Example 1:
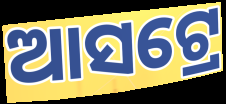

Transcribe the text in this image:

ଆସଟ୍ରେ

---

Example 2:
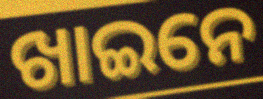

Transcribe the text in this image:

ଖାଇନେ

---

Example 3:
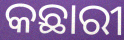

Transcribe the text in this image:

କଛାରୀ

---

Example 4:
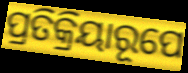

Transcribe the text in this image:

ପ୍ରତିକ୍ରିୟାରୂପେ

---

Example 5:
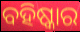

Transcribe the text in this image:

ବହିଷ୍କାର